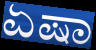
ಏಷಾ